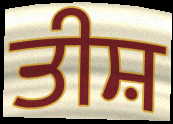
ਤੀਸ਼